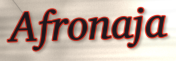
Afronaja